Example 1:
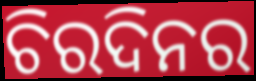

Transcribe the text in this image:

ଚିରଦିନର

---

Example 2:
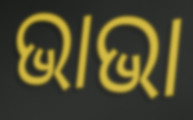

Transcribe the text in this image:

ଭାଭା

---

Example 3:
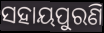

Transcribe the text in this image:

ସହାୟପୁରଣି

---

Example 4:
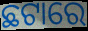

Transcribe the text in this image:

ଛଟାରେ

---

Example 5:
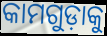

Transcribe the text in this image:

କାମଗୁଡ଼ାକୁ